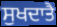
ਸੁਖਦਾਤੈ